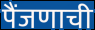
पैंजणाची